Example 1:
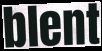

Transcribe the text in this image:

blent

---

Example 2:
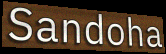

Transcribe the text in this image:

Sandoha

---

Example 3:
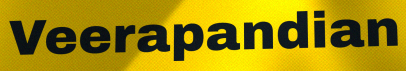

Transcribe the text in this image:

Veerapandian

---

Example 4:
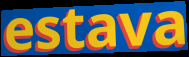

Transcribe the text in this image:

estava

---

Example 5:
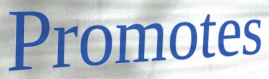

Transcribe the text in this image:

Promotes